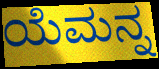
ಯೆಮನ್ನ